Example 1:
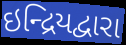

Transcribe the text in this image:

ઇન્દ્રિયદ્વારા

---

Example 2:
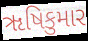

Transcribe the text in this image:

ૠષિકુમાર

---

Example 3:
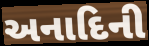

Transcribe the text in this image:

અનાદિની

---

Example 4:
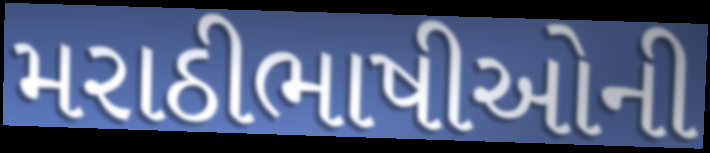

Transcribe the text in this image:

મરાઠીભાષીઓની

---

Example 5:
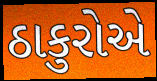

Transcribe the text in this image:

ઠાકુરોએ